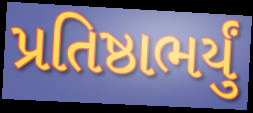
પ્રતિષ્ઠાભર્યું